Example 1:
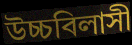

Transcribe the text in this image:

উচ্চবিলাসী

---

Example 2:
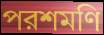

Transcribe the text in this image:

পরশমণি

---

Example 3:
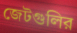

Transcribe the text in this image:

জেটগুলির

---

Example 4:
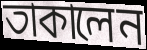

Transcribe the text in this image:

তাকালেন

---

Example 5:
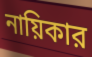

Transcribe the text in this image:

নায়িকার